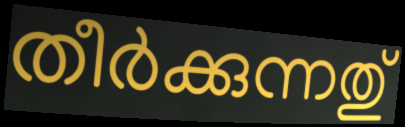
തീർക്കുന്നതു്